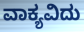
ವಾಕ್ಯವಿದು